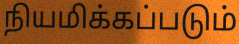
நியமிக்கப்படும்